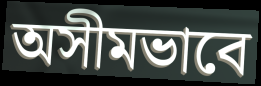
অসীমভাবে